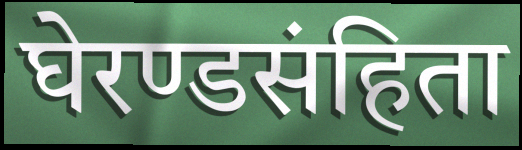
घेरण्डसंहिता